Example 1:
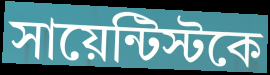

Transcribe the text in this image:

সায়েন্টিস্টকে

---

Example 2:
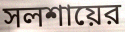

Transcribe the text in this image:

সলশায়ের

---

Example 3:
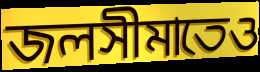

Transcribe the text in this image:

জলসীমাতেও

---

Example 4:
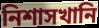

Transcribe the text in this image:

নিশাসখানি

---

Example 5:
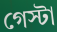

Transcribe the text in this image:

গেস্টা